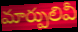
మార్పులివీ